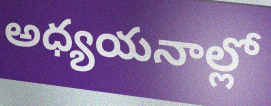
అధ్యయనాల్లో